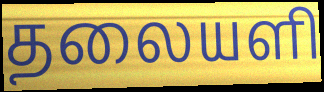
தலையளி